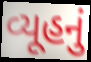
વ્યૂહનું